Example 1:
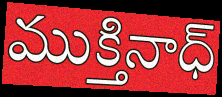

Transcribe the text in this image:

ముక్తినాధ్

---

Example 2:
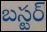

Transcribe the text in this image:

బస్టర్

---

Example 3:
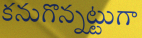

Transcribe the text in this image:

కనుగొన్నట్టుగా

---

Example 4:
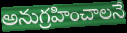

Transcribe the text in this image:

అనుగ్రహించాలనే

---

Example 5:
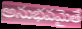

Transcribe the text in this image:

అనుభవమైతే